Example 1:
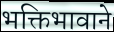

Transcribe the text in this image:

भक्तिभावाने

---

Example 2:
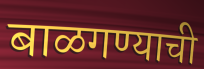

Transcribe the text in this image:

बाळगण्याची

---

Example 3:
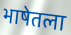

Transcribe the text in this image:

भाषेतला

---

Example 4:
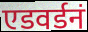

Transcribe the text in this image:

एडवर्डनं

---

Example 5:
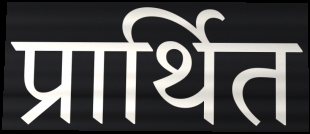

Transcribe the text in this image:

प्रार्थित